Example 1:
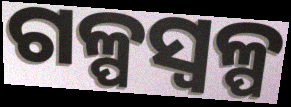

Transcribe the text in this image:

ଗଳ୍ପସ୍ୱଳ୍ପ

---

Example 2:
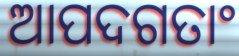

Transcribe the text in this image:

ଆପଦଗତାଂ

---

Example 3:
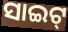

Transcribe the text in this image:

ସାଇଟ୍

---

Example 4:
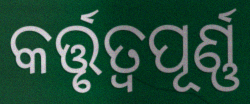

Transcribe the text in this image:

କର୍ତ୍ତୃତ୍ୱପୂର୍ଣ୍ଣ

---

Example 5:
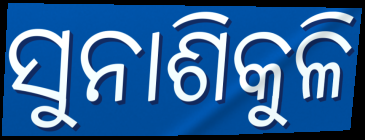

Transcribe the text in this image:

ସୁନାଶିକୁଳି